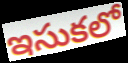
ఇసుకలో